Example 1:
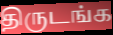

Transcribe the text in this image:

திருடங்க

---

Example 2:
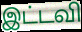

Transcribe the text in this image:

இட்டவி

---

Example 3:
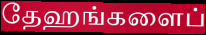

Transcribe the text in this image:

தேஹங்களைப்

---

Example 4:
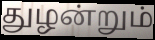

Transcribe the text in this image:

துழன்றும்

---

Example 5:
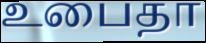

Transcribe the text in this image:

உபைதா